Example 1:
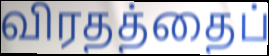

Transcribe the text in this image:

விரதத்தைப்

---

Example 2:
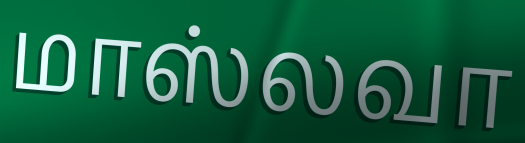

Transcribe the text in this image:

மாஸ்லவா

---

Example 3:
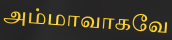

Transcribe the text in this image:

அம்மாவாகவே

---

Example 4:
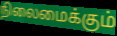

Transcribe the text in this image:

நிலைமைக்கும்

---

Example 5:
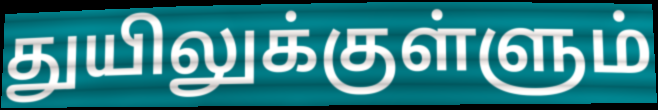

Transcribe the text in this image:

துயிலுக்குள்ளும்